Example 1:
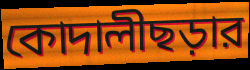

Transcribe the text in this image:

কোদালীছড়ার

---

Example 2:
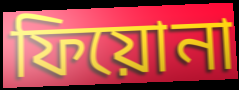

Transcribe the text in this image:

ফিয়োনা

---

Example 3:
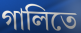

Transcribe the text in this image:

গালিতে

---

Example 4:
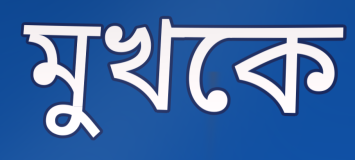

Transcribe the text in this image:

মুখকে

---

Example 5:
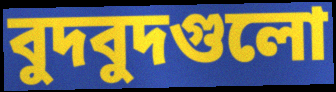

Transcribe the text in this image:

বুদবুদগুলো